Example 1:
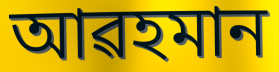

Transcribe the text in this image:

আৱহমান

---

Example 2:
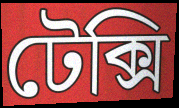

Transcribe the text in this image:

টেক্সি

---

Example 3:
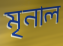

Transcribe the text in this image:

মৃনাল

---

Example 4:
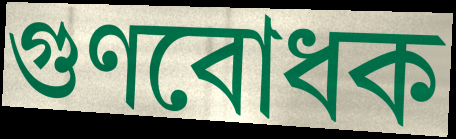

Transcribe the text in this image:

গুণবোধক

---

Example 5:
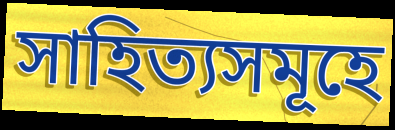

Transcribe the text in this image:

সাহিত্যসমূহে